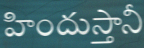
హిందుస్తానీ